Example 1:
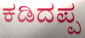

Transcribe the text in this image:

ಕಡಿದಪ್ಪ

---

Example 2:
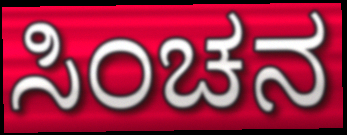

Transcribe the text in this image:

ಸಿಂಚನ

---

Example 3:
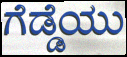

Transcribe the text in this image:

ಗೆಡ್ಡೆಯು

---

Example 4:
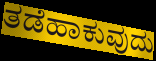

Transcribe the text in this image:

ತಡೆಹಾಕುವುದು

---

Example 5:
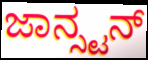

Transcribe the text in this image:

ಜಾನ್ಸ್ಟನ್